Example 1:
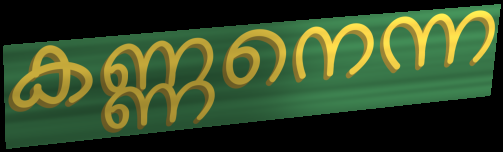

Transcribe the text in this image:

കണ്ണനെന്ന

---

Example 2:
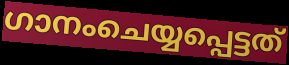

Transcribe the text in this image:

ഗാനംചെയ്യപ്പെട്ടത്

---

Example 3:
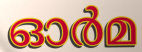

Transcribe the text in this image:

ഓർമ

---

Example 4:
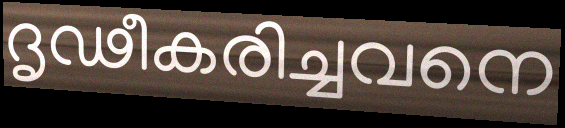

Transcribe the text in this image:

ദൃഢീകരിച്ചവനെ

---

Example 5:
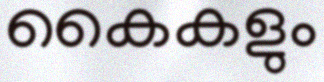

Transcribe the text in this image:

കൈകളും